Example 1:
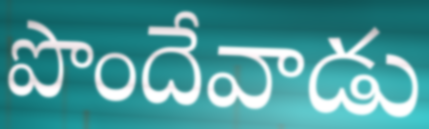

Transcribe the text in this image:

పొందేవాడు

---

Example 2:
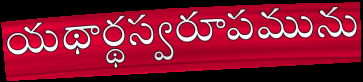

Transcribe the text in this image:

యథార్థస్వరూపమును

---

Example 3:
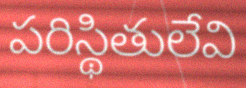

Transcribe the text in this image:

పరిస్థితులేవి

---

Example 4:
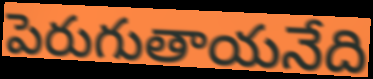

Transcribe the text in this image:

పెరుగుతాయనేది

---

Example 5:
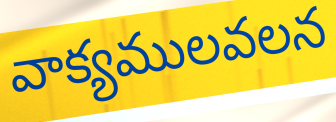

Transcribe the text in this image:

వాక్యములవలన